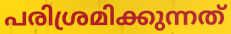
പരിശ്രമിക്കുന്നത്